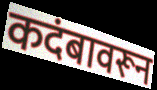
कदंबावरून